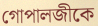
গোপালজীকে